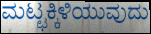
ಮಟ್ಟಕ್ಕಿಳಿಯುವುದು